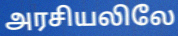
அரசியலிலே